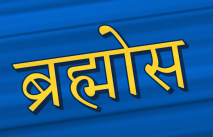
ब्रह्मोस